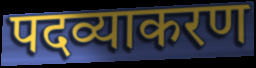
पदव्याकरण